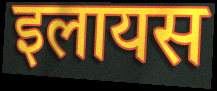
इलायस